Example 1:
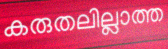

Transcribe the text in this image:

കരുതലില്ലാത്ത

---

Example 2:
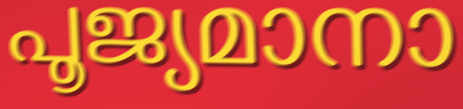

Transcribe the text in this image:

പൂജ്യമാനാ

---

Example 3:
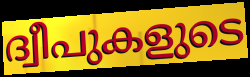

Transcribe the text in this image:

ദ്വീപുകളുടെ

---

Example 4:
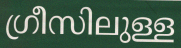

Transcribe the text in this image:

ഗ്രീസിലുള്ള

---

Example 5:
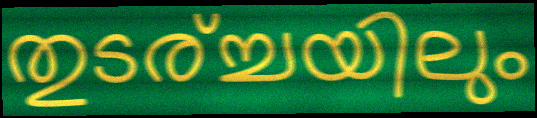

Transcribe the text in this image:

തുടര്ച്ചയിലും